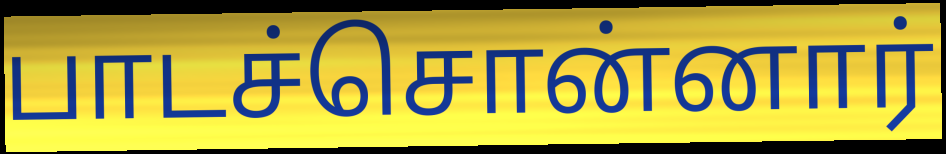
பாடச்சொன்னார்